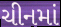
ચીનમાં